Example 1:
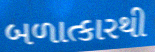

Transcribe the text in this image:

બળાત્કારથી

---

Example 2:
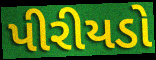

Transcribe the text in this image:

પીરીયડો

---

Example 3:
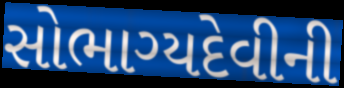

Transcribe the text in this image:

સોભાગ્યદેવીની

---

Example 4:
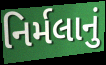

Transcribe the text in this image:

નિર્મલાનું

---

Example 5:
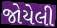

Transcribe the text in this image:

જોયેલી